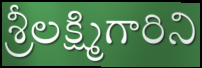
శ్రీలక్ష్మిగారిని